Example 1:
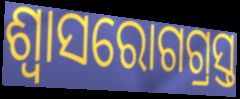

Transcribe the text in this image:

ଶ୍ୱାସରୋଗଗ୍ରସ୍ତ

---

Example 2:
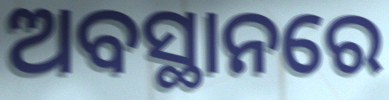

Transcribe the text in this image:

ଅବସ୍ଥାନରେ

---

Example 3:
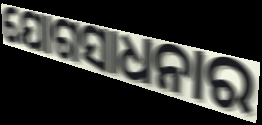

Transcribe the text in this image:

ଯୋଗସାଧନାର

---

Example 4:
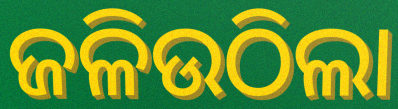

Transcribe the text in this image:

ଜଳିଉଠିଲା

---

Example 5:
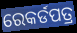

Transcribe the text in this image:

ରେକର୍ଡପତ୍ର